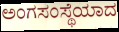
ಅಂಗಸಂಸ್ಥೆಯಾದ